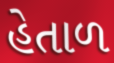
હેતાળ